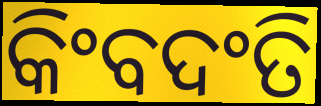
କିଂବଦଂତି